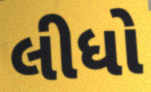
લીધો